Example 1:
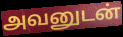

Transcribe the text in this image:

அவனுடன்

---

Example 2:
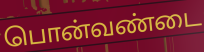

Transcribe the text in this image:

பொன்வண்டை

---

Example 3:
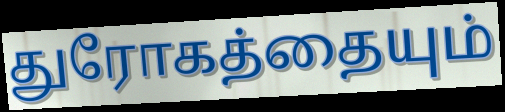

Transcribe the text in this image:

துரோகத்தையும்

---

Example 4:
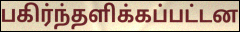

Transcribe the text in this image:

பகிர்ந்தளிக்கப்பட்டன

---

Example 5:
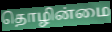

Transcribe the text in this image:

தொழின்மை